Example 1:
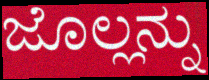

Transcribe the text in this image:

ಜೊಲ್ಲನ್ನು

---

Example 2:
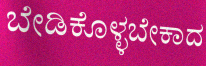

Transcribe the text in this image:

ಬೇಡಿಕೊಳ್ಳಬೇಕಾದ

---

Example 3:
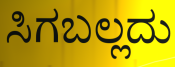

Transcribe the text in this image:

ಸಿಗಬಲ್ಲದು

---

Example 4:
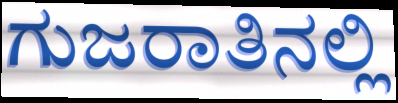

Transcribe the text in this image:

ಗುಜರಾತಿನಲ್ಲಿ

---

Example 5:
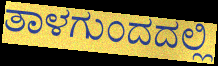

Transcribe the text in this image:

ತಾಳಗುಂದದಲ್ಲಿ